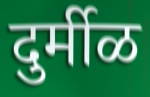
दुर्मीळ